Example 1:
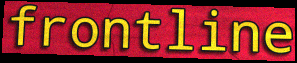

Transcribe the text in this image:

frontline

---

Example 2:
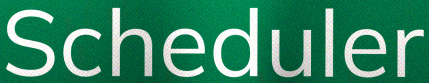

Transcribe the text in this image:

Scheduler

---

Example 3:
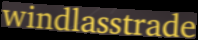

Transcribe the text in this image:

windlasstrade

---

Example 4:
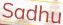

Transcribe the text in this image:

Sadhu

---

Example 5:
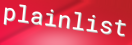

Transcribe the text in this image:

plainlist